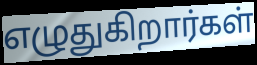
எழுதுகிறார்கள்